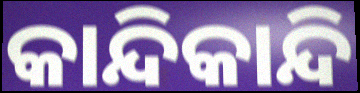
କାନ୍ଦିକାନ୍ଦି